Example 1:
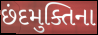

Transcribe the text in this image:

છંદમુક્તિના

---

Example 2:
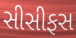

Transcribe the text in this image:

સીસીફસ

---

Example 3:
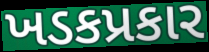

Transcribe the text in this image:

ખડકપ્રકાર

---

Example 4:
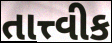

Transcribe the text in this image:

તાત્ત્વીક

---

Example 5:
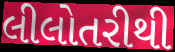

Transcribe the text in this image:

લીલોતરીથી